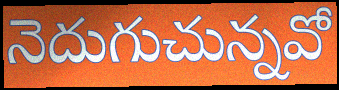
నెదుగుచున్నవో